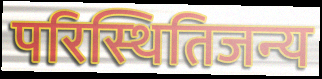
परिस्थितिजन्य